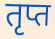
तृप्त